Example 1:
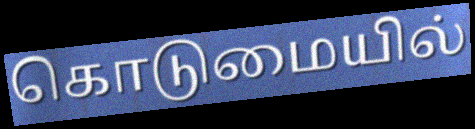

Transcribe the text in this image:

கொடுமையில்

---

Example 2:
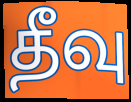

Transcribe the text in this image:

தீவு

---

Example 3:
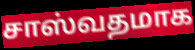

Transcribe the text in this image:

சாஸ்வதமாக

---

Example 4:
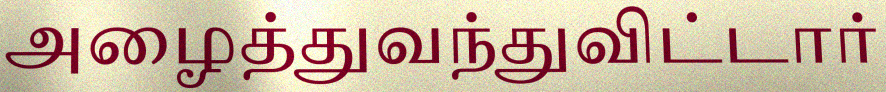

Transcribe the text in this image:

அழைத்துவந்துவிட்டார்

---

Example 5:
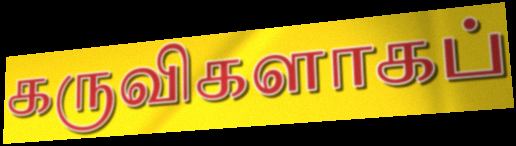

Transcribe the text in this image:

கருவிகளாகப்